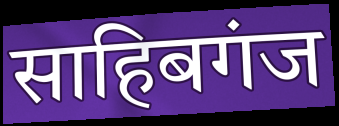
साहिबगंज